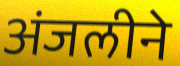
अंजलीने